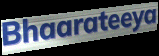
Bhaarateeya